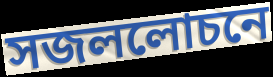
সজললোচনে